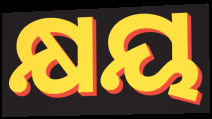
କ୍ଷୟ